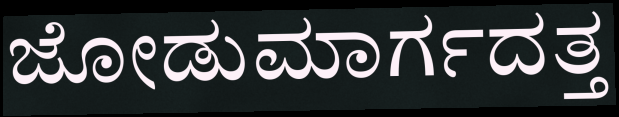
ಜೋಡುಮಾರ್ಗದತ್ತ